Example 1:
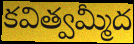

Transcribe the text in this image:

కవిత్వమ్మీద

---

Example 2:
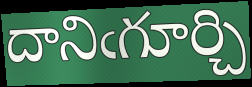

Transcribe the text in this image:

దానిఁగూర్చి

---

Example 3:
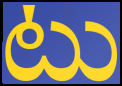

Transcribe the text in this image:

టు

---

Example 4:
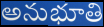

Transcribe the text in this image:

అనుభూతి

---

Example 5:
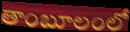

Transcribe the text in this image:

తాంబూలంలో